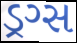
ડ્રગ્સ